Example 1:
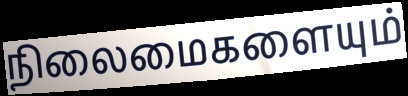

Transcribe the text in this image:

நிலைமைகளையும்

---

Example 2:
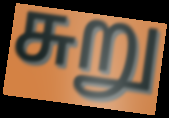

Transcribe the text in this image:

சுறு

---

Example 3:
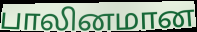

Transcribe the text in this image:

பாலினமான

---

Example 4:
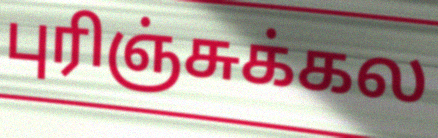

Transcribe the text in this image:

புரிஞ்சுக்கல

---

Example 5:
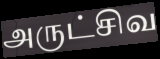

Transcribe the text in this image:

அருட்சிவ